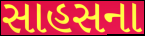
સાહસના